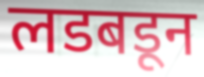
लडबडून